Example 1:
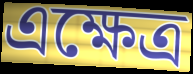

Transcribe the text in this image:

এক্ষেত্র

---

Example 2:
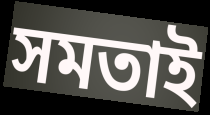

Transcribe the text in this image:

সমতাই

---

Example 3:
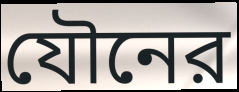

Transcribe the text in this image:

যৌনের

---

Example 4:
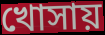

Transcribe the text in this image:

খোসায়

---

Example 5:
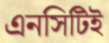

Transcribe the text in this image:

এনসিটিই